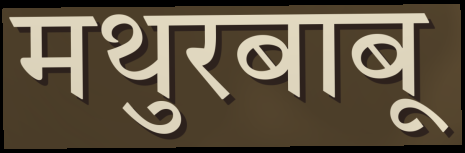
मथुरबाबू